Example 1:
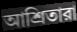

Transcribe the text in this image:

আশ্রিতারা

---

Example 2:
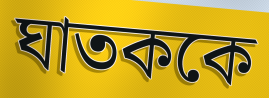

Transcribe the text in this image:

ঘাতককে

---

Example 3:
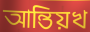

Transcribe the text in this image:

আন্তিয়খ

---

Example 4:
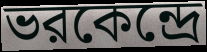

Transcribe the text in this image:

ভরকেন্দ্রে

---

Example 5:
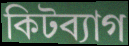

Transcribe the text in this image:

কিটব্যাগ